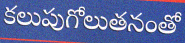
కలుపుగోలుతనంతో